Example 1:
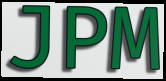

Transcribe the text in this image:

JPM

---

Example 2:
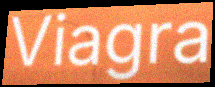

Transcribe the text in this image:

Viagra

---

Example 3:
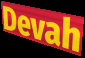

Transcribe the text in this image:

Devah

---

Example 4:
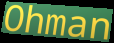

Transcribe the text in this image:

Ohman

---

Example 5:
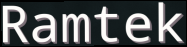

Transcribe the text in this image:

Ramtek